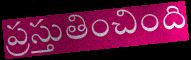
ప్రస్తుతించింది